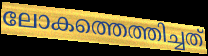
ലോകത്തെത്തിച്ചത്